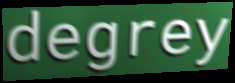
degrey